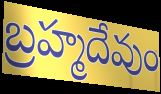
బ్రహ్మదేవుం